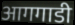
आगगाडी